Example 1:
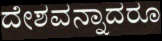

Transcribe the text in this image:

ದೇಶವನ್ನಾದರೂ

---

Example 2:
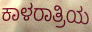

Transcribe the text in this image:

ಕಾಳರಾತ್ರಿಯ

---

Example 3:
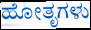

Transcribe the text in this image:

ಹೋತೃಗಳು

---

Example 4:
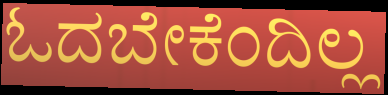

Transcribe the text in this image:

ಓದಬೇಕೆಂದಿಲ್ಲ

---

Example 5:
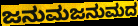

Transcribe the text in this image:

ಜನುಮಜನುಮದ